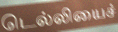
டெல்லியைச்